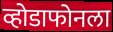
व्होडाफोनला